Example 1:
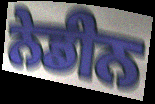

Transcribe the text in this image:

ਨੇਡੀਨ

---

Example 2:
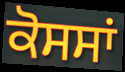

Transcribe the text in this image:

ਕੋਸਸਾਂ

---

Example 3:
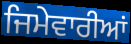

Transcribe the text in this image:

ਜਿਮੇਵਾਰੀਆਂ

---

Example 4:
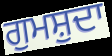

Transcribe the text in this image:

ਗੁਮਸ਼ੁਦਾ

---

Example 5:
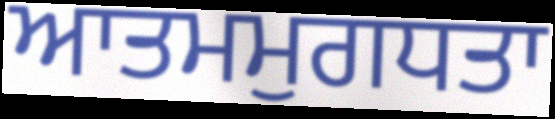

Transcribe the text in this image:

ਆਤਮਮੁਗਧਤਾ